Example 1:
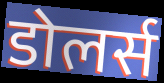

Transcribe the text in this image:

डोलर्स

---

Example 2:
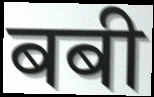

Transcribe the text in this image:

बबी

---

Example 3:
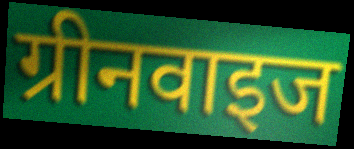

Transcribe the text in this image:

ग्रीनवाइज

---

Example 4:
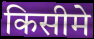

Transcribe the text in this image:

किसीमे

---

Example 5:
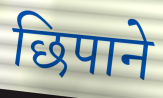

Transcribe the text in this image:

छिपाने